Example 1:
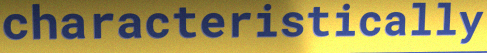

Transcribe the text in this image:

characteristically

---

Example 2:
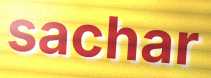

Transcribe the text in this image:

sachar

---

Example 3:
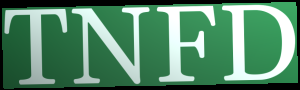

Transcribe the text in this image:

TNFD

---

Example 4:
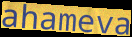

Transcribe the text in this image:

ahameva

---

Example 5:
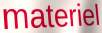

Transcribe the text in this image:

materiel